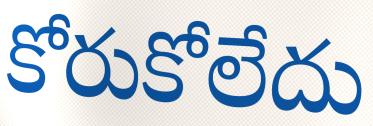
కోరుకోలేదు